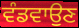
ਵੰਡਵਾਉਣ